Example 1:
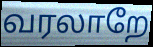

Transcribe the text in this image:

வரலாறே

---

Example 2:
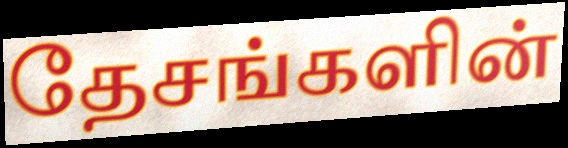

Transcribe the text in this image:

தேசங்களின்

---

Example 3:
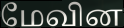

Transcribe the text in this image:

மேவின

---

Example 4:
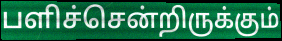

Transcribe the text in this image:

பளிச்சென்றிருக்கும்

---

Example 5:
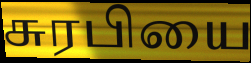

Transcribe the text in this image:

சுரபியை